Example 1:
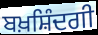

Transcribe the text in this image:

ਬਖ਼ਸ਼ਿੰਦਗੀ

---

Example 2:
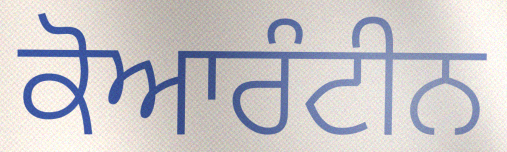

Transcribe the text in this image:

ਕੋਆਰੰਟੀਨ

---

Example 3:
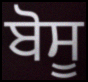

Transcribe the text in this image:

ਬੋਸੂ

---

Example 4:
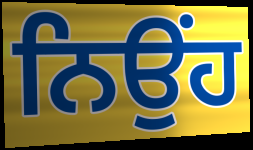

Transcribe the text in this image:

ਨਿਉਂਹ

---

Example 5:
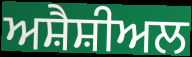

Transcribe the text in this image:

ਅਸ਼ੈਸ਼ੀਅਲ